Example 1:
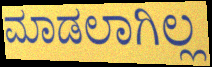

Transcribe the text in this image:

ಮಾಡಲಾಗಿಲ್ಲ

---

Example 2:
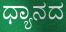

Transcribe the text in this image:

ಧ್ಯಾನದ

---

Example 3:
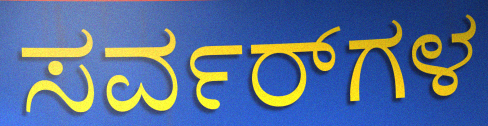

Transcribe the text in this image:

ಸರ್ವರ್‌ಗಳ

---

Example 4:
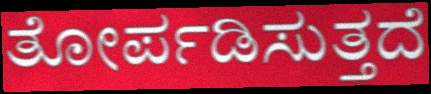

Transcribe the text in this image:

ತೋರ್ಪಡಿಸುತ್ತದೆ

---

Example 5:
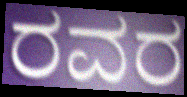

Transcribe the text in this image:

ರವರ